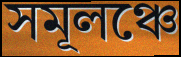
সমূলঞ্চে